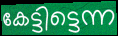
കേട്ടിട്ടെന്ന